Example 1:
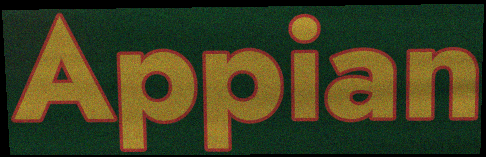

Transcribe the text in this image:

Appian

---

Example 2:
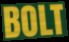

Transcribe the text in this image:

BOLT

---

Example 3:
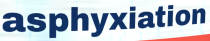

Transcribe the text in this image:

asphyxiation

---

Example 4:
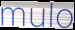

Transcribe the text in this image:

mulo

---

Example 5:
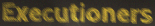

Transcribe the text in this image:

Executioners